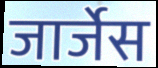
जार्जेस